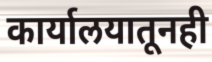
कार्यालयातूनही